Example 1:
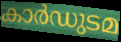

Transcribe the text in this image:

കാർഡുടമ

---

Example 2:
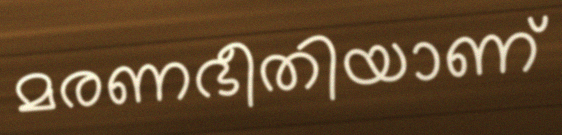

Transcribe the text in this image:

മരണഭീതിയാണ്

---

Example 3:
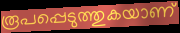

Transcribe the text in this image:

രൂപപ്പെടുത്തുകയാണ്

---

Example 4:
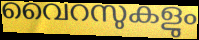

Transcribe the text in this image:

വൈറസുകളും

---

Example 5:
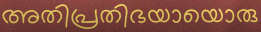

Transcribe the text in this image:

അതിപ്രതിഭയായൊരു